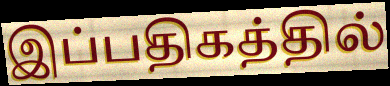
இப்பதிகத்தில்